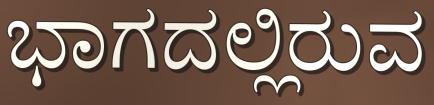
ಭಾಗದಲ್ಲಿರುವ